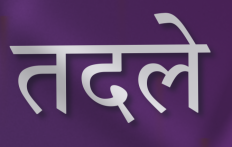
तदले